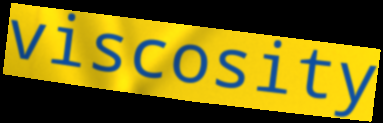
viscosity